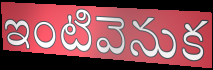
ఇంటివెనుక